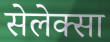
सेलेक्सा